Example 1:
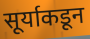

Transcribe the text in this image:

सूर्याकडून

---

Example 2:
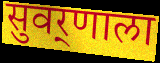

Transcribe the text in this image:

सुवर्णाला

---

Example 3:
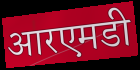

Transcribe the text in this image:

आरएमडी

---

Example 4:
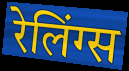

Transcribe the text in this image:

रेलिंग्स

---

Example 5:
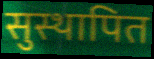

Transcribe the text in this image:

सुस्थापित